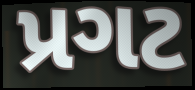
પ્રગટ